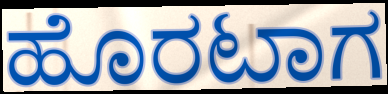
ಹೊರಟಾಗ